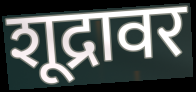
शूद्रावर